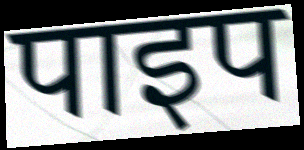
पाइप